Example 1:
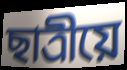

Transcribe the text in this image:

ছাত্ৰীয়ে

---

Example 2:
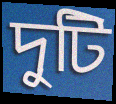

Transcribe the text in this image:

দুটি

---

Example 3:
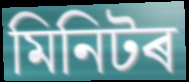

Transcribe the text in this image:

মিনিটৰ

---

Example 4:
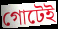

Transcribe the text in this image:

গোটেই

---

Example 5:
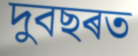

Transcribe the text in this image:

দুবছৰত